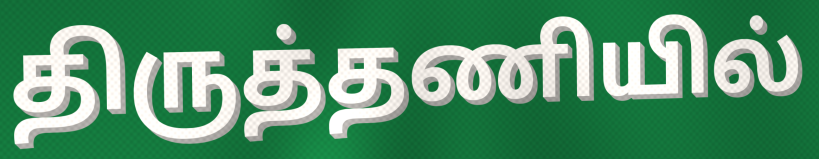
திருத்தணியில்